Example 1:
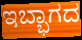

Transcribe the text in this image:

ಇಬ್ಭಾಗದ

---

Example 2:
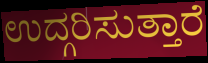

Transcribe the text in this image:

ಉದ್ಗರಿಸುತ್ತಾರೆ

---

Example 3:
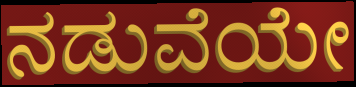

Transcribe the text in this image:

ನಡುವೆಯೇ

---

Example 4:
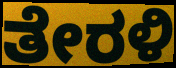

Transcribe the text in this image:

ತೇರಳಿ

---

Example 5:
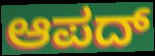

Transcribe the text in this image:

ಆಪದ್